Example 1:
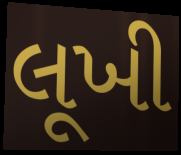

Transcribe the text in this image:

લૂખી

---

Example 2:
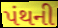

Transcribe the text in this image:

પંથની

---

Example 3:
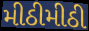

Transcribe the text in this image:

મીઠીમીઠી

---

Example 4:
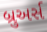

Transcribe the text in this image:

બ્રુઅર્સ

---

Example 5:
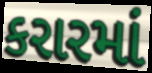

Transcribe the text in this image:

કરારમાં